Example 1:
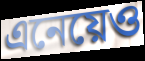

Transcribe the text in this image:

এনেয়েও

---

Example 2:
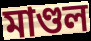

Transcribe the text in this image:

মাণ্ডল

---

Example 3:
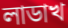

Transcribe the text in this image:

লাডাখ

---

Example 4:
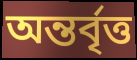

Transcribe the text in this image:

অন্তৰ্বৃত্ত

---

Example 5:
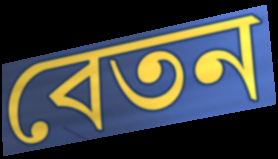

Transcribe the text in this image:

বেতন